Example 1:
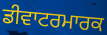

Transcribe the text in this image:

ਡੀਵਾਟਰਮਾਰਕ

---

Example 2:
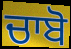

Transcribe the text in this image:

ਚਾਬੋ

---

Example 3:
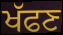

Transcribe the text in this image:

ਖੱਫਣ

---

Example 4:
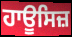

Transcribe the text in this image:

ਹਾਊਸਿਜ਼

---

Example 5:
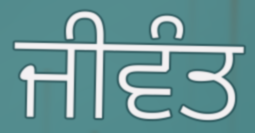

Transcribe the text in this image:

ਜੀਵੰਤ